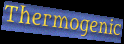
Thermogenic